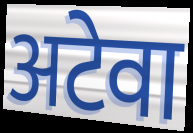
अटेवा